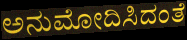
ಅನುಮೋದಿಸಿದಂತೆ